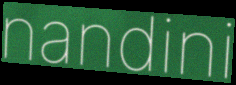
nandini